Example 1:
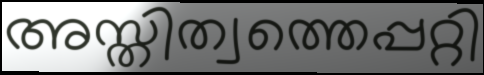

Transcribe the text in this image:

അസ്തിത്വത്തെപ്പറ്റി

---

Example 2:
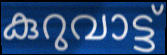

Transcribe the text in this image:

കുറുവാട്ട്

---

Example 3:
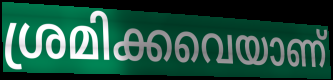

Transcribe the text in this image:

ശ്രമിക്കവെയാണ്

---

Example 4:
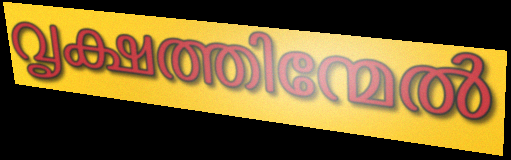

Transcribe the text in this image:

വൃക്ഷത്തിന്മേൽ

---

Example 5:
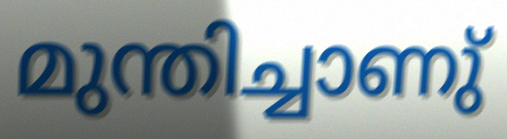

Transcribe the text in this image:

മുന്തിച്ചാണു്